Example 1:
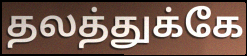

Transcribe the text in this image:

தலத்துக்கே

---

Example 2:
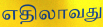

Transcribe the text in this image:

எதிலாவது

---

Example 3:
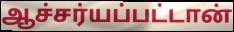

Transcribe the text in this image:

ஆச்சர்யப்பட்டான்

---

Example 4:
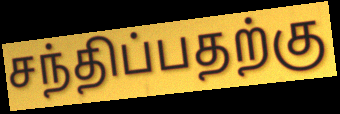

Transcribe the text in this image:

சந்திப்பதற்கு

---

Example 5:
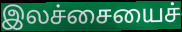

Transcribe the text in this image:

இலச்சையைச்